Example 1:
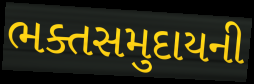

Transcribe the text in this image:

ભક્તસમુદાયની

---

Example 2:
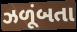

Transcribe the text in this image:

ઝળૂંબતા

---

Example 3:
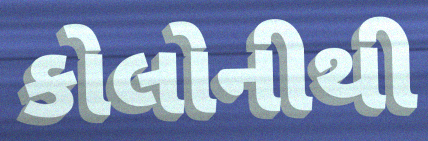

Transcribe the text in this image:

કોલોનીથી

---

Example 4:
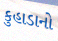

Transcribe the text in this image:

કુહાડાનો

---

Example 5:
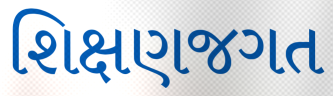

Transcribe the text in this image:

શિક્ષણજગત